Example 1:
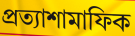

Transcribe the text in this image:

প্রত্যাশামাফিক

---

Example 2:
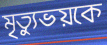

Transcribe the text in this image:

মৃত্যুভয়কে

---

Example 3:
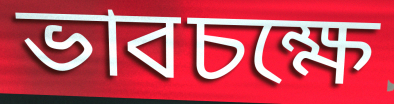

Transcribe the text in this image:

ভাবচক্ষে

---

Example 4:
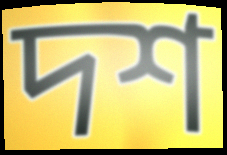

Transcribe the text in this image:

দশ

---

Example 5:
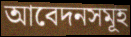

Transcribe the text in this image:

আবেদনসমূহ